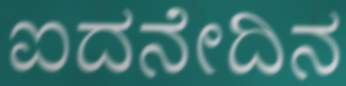
ಐದನೇದಿನ